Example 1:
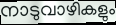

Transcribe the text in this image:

നാടുവാഴികളും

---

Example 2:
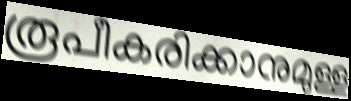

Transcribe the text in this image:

രൂപീകരിക്കാനുമുള്ള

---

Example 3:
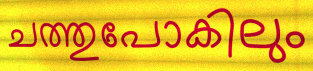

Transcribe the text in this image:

ചത്തുപോകിലും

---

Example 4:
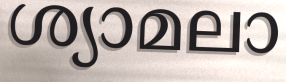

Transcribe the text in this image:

ശ്യാമലാ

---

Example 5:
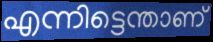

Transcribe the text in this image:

എന്നിട്ടെന്താണ്